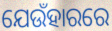
ଯେଉଁହାରରେ